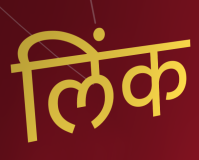
लिंक